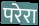
परेरा